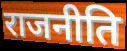
राजनीति